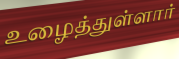
உழைத்துள்ளார்